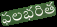
ఫలభరిత